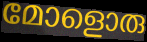
മോളൊരു